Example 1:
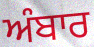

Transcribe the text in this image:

ਅੰਬਾਰ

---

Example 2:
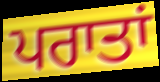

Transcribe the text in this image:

ਪਰਾਤਾਂ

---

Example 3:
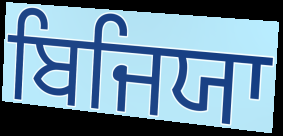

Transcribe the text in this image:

ਬਿਜਿਯਾ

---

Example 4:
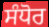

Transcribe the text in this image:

ਸੰਧੋਰ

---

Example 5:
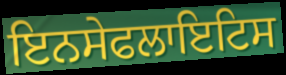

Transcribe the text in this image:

ਇਨਸੇਫਲਾਇਟਿਸ